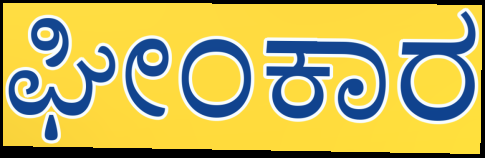
ಘೀಂಕಾರ